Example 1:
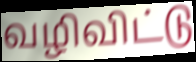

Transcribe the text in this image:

வழிவிட்டு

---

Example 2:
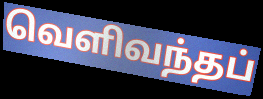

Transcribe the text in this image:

வெளிவந்தப்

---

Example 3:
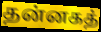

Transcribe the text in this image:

தன்னகத்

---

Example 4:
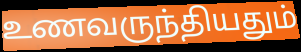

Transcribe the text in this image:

உணவருந்தியதும்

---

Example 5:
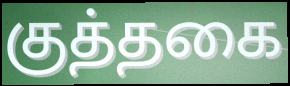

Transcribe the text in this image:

குத்தகை